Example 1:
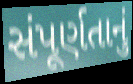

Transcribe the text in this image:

સંપૂર્ણતાનું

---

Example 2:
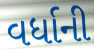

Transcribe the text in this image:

વર્ધાની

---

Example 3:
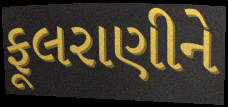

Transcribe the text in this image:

ફૂલરાણીને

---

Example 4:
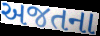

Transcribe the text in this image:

અજતના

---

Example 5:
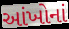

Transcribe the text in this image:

આંખોનાં